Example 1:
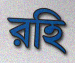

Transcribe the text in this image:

রহি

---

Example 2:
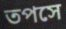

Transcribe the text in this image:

তপসে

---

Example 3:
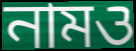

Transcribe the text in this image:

নামও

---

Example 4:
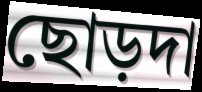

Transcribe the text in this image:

ছোড়দা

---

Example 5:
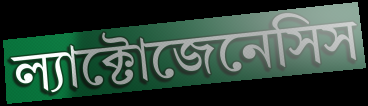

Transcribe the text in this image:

ল্যাক্টোজেনেসিস